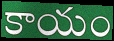
కాయం